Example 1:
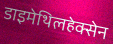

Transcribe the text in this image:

डाइमेथिलहेक्सेन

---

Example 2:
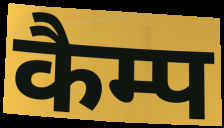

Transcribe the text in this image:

कैम्प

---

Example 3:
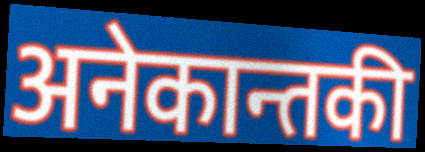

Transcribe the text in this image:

अनेकान्तकी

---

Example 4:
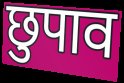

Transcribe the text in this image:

छुपाव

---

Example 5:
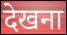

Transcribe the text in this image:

देखना